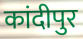
कांदीपुर